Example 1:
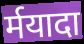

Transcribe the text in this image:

र्मयादा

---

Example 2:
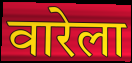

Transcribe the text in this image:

वारेला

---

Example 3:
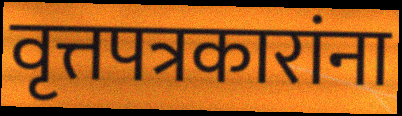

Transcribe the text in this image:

वृत्तपत्रकारांना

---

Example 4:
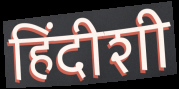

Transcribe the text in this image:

हिंदीशी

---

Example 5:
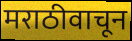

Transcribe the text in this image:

मराठीवाचून